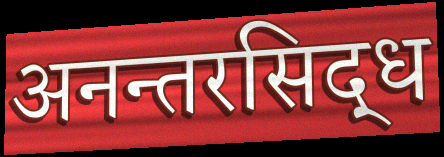
अनन्तरसिद्ध